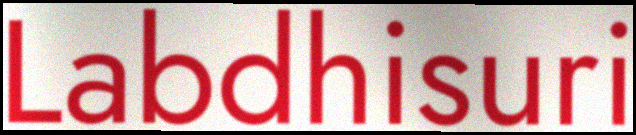
Labdhisuri